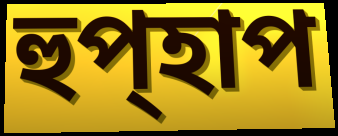
হুপ্হাপ